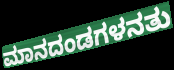
ಮಾನದಂಡಗಳನತು